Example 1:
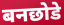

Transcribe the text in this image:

बनछोडे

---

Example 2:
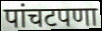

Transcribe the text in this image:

पांचटपणा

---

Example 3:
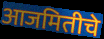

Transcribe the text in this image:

आजमितीचे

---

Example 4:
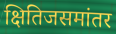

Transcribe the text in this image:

क्षितिजसमांतर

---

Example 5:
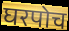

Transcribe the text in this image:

घरपोच